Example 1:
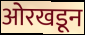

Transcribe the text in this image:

ओरखडून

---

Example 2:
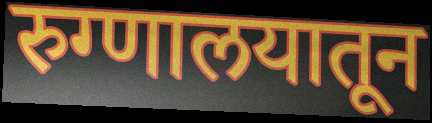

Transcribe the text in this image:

रुग्णालयातून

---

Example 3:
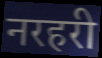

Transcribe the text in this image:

नरहरी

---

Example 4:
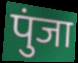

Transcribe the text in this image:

पुंजा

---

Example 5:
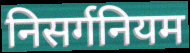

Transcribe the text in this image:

निसर्गनियम